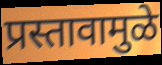
प्रस्तावामुळे